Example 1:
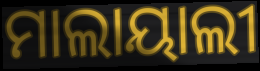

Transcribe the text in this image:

ମାଲାୟାଲୀ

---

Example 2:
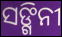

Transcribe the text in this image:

ସଙ୍ଗିନୀ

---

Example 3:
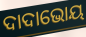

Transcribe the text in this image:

ଦାଦାଭୋୟ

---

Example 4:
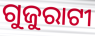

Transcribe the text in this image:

ଗୁଜୁରାଟୀ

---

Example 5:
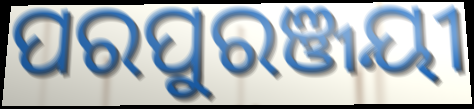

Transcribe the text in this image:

ପରପୁରଞ୍ଜୟୀ